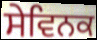
ਸੇਵਿਨਕ